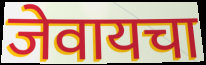
जेवायचा